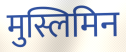
मुस्लिमिन